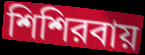
শিশিরবায়